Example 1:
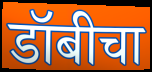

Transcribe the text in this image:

डॉबीचा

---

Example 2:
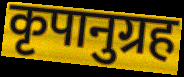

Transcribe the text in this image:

कृपानुग्रह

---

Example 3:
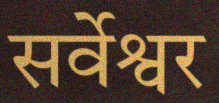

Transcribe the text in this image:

सर्वेश्वर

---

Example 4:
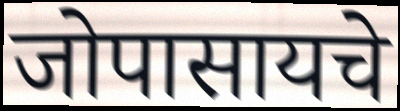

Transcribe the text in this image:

जोपासायचे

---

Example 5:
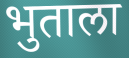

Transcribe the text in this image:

भुताला